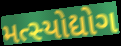
મત્સ્યોદ્યોગ